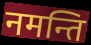
नमन्ति